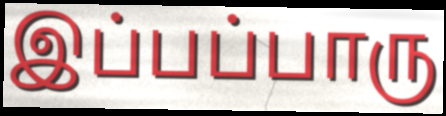
இப்பப்பாரு